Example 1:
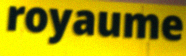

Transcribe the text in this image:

royaume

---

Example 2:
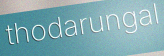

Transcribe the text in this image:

thodarungal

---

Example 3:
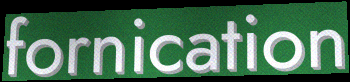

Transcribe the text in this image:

fornication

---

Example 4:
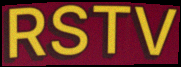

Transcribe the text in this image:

RSTV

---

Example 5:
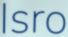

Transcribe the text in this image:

Isro